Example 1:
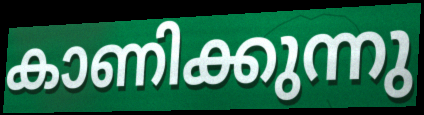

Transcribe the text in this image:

കാണിക്കുന്നു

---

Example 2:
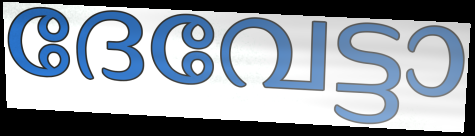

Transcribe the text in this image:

ദേവേട്ടാ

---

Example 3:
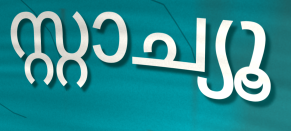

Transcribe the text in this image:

സ്റ്റാച്യൂ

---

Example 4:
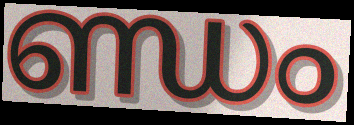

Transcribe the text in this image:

ണ്ഡം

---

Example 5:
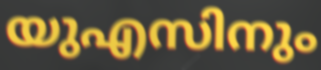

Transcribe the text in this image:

യുഎസിനും